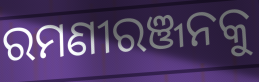
ରମଣୀରଞ୍ଜନକୁ